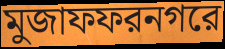
মুজাফফরনগরে